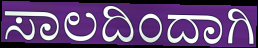
ಸಾಲದಿಂದಾಗಿ